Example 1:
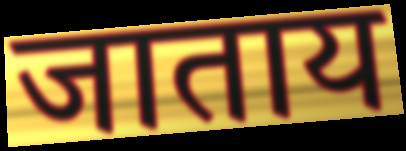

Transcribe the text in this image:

जाताय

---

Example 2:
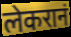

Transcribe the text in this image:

लेकरानं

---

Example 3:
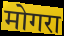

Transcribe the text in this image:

मोगरा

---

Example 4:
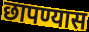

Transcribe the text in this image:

छापण्यास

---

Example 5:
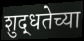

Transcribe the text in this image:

शुद्धतेच्या